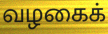
வழகைக்